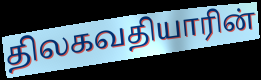
திலகவதியாரின்